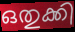
ഒതുക്കി